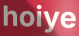
hoiye